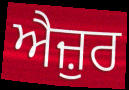
ਐਜ਼ੁਰ